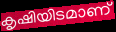
കൃഷിയിടമാണ്